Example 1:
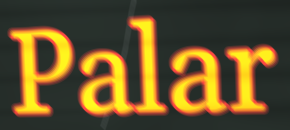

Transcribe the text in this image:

Palar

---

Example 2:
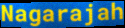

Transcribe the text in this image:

Nagarajah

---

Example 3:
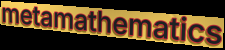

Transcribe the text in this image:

metamathematics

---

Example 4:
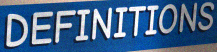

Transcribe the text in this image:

DEFINITIONS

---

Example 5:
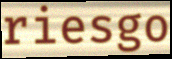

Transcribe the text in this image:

riesgo